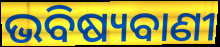
ଭବିଷ୍ୟବାଣୀ